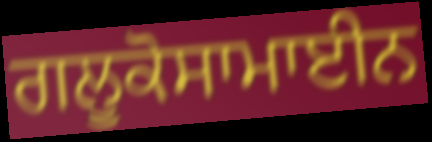
ਗਲੂਕੋਸਾਮਾਈਨ